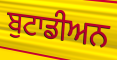
ਬੁਟਾਡੀਅਨ